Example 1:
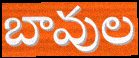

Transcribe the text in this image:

బావుల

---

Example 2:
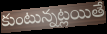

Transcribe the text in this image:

కుంటున్నట్లయితే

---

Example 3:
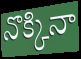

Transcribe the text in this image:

నొక్కినా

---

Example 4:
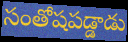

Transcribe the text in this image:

సంతోషపడ్డాడు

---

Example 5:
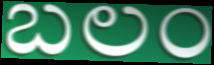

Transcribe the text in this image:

బలం